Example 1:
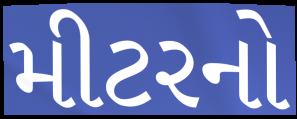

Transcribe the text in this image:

મીટરનો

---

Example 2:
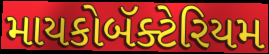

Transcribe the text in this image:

માયકોબૅક્ટેરિયમ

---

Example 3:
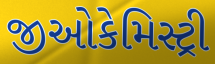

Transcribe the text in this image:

જીઓકેમિસ્ટ્રી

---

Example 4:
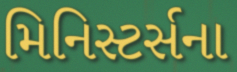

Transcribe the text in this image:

મિનિસ્ટર્સના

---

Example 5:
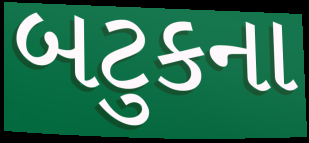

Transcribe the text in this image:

બટુકના